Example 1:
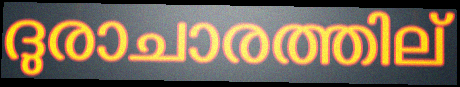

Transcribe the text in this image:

ദുരാചാരത്തില്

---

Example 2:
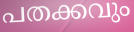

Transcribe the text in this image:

പതക്കവും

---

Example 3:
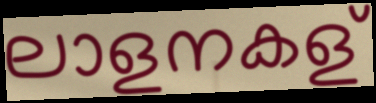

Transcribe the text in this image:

ലാളനകള്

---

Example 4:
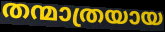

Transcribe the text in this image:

തന്മാത്രയായ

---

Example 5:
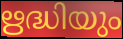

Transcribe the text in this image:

ഋദ്ധിയും